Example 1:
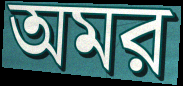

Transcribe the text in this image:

অমর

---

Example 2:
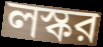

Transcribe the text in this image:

লস্কর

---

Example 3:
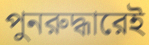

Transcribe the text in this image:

পুনরুদ্ধারেই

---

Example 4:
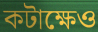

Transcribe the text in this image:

কটাক্ষেও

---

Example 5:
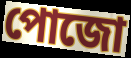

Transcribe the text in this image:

পোজো